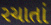
રચાતાં